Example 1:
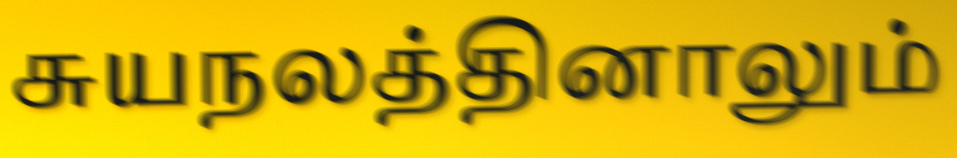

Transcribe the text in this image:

சுயநலத்தினாலும்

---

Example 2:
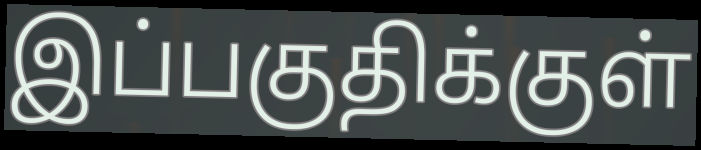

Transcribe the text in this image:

இப்பகுதிக்குள்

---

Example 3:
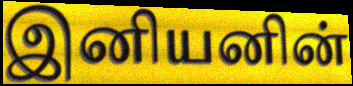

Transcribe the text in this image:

இனியனின்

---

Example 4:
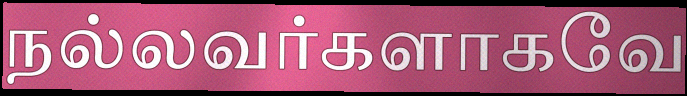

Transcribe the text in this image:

நல்லவர்களாகவே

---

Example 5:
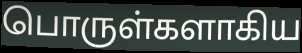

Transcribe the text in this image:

பொருள்களாகிய